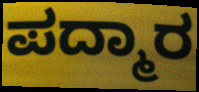
ಪದ್ಮಾರ